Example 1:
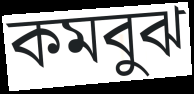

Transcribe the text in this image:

কমবুঝ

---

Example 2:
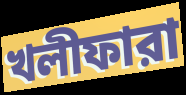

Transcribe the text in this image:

খলীফারা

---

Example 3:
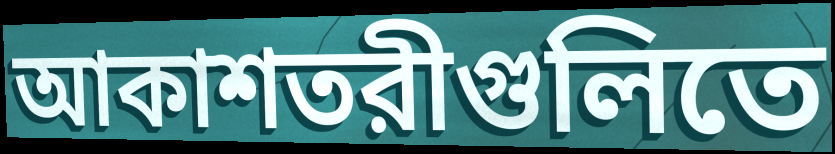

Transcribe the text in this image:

আকাশতরীগুলিতে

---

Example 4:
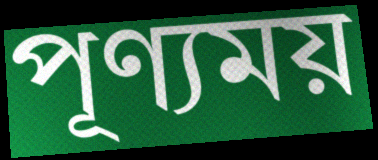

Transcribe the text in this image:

পূণ্যময়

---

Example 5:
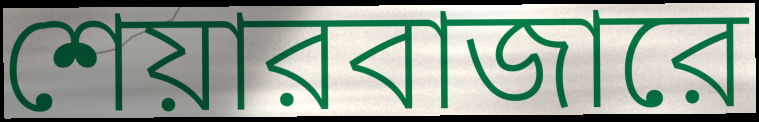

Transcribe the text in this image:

শেয়ারবাজারে